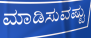
ಮಾಡಿಸುವಷ್ಟು